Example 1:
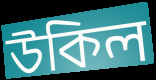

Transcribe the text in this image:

উকিল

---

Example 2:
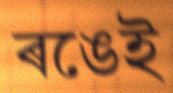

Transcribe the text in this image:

ৰঙেই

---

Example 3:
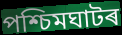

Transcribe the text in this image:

পশ্চিমঘাটৰ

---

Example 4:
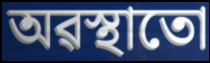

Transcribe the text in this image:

অৱস্থাতো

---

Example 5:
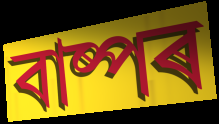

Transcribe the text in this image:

বাষ্পৰ